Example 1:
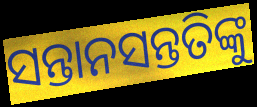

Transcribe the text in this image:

ସନ୍ତାନସନ୍ତତିଙ୍କୁ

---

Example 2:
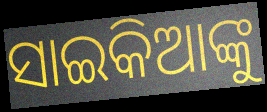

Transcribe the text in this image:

ସାଇକିଆଙ୍କୁ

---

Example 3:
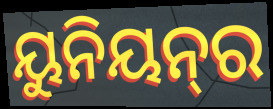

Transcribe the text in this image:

ୟୁନିୟନ୍‌ର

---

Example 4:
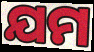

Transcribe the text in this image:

ଯମ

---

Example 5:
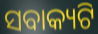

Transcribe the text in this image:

ସବାକ୍ୟଟି